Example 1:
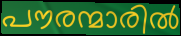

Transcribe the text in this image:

പൗരന്മാരിൽ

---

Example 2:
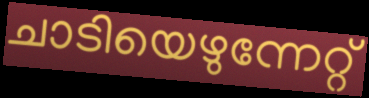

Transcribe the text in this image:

ചാടിയെഴുന്നേറ്റ്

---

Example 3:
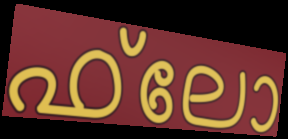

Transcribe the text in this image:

ഫ്‌ലോ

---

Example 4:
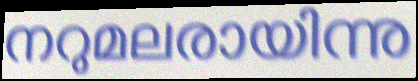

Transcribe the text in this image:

നറുമലരായിന്നു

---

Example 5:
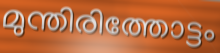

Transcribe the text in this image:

മുന്തിരിത്തോട്ടം